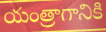
యంత్రాగానికి